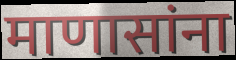
माणासांना